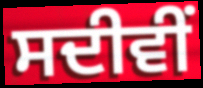
ਸਦੀਵੀਂ